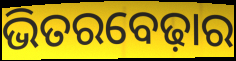
ଭିତରବେଢ଼ାର